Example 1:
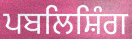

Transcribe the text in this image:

ਪਬਲਿਸ਼ਿੰਗ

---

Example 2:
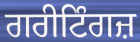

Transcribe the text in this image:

ਗਰੀਟਿੰਗਜ਼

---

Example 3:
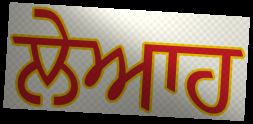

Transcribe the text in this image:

ਲੇਆਹ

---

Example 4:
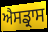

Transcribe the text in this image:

ਐਸਡ੍ਰਾਸ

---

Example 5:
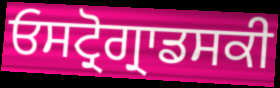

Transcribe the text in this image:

ਓਸਟ੍ਰੋਗ੍ਰਾਡਸਕੀ